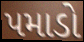
પમાડો